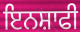
ਇਨਸ਼ਾਫੀ